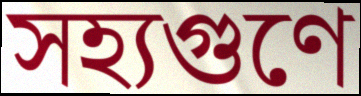
সহ্যগুণে